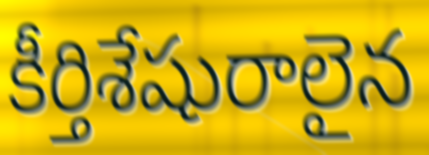
కీర్తిశేషురాలైన